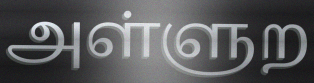
அள்ளுற